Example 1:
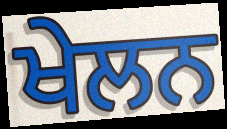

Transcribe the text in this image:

ਖੇਲਨ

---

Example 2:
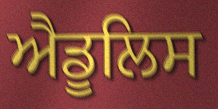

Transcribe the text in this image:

ਐਡੂਲਿਸ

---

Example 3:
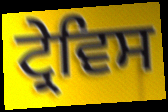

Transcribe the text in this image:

ਟ੍ਰੇਵਿਸ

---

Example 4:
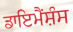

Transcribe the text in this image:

ਡਾਇਮੈਂਸ਼ੰਸ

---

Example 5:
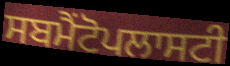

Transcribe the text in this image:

ਸਬਮੈਂਟੋਪਲਾਸਟੀ